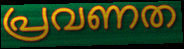
പ്രവണത